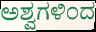
ಅಶ್ವಗಳಿಂದ